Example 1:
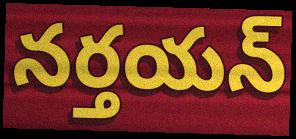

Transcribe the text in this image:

నర్తయన్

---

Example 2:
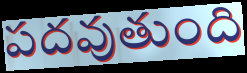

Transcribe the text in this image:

పదవుతుంది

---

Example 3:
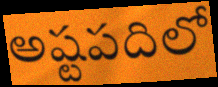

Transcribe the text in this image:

అష్టపదిలో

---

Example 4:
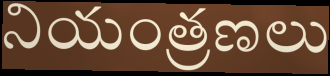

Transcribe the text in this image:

నియంత్రణలు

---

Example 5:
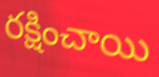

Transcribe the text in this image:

రక్షించాయి